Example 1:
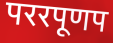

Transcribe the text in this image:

पररपूणप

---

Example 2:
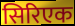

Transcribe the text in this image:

सिरिएक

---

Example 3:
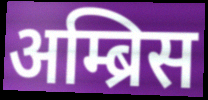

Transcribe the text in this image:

अम्ब्रिस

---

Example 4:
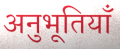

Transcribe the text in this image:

अनुभूतियाँ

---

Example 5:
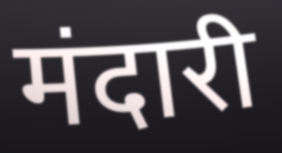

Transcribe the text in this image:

मंदारी